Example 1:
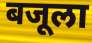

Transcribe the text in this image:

बजूला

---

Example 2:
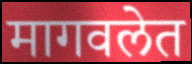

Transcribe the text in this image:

मागवलेत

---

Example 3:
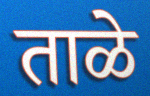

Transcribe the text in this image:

ताळे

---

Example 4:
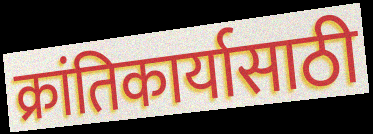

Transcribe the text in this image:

क्रांतिकार्यासाठी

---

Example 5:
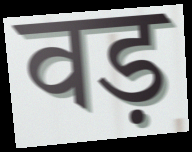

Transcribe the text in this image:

वड़